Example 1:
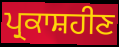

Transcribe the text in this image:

ਪ੍ਰਕਾਸ਼ਹੀਣ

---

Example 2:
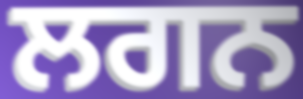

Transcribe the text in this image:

ਲਗਨ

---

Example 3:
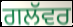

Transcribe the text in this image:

ਗਲੱਵਰ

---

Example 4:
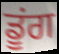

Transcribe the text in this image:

ਡੂਂਗ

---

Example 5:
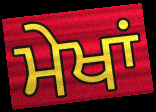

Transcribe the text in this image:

ਮੇਖਾਂ